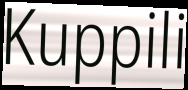
Kuppili